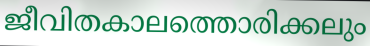
ജീവിതകാലത്തൊരിക്കലും